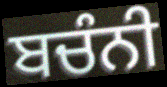
ਬਚੰਨੀ